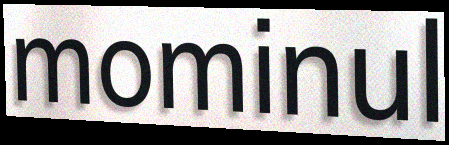
mominul